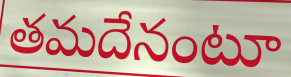
తమదేనంటూ